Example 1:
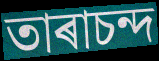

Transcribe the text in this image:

তাৰাচন্দ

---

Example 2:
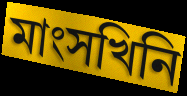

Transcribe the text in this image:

মাংসখিনি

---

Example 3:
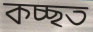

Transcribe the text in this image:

কচ্ছত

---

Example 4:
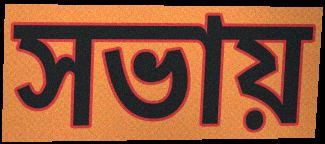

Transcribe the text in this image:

সভায়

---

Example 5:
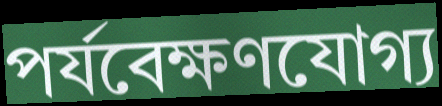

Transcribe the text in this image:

পৰ্যবেক্ষণযোগ্য